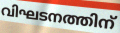
വിഘടനത്തിന്